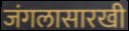
जंगलासारखी